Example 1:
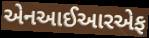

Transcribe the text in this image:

એનઆઈઆરએફ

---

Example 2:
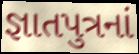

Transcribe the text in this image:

જ્ઞાતપુત્રનાં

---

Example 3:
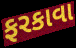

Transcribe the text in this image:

ફરકાવા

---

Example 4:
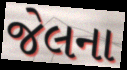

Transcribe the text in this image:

જેલના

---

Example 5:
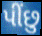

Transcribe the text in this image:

પીંછુ